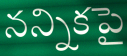
నన్నికపై